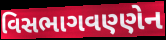
વિસભાગવણ્ણેન